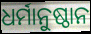
ଧର୍ମାନୁଷ୍ଠାନ